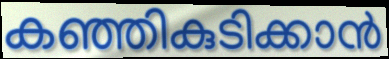
കഞ്ഞികുടിക്കാൻ